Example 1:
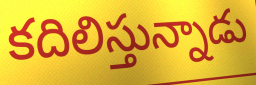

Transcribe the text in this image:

కదిలిస్తున్నాడు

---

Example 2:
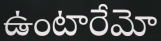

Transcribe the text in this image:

ఉంటారేమో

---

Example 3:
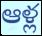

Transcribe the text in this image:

ఆళ్ల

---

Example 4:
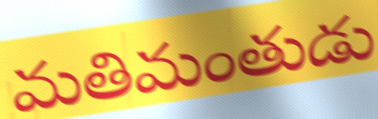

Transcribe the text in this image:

మతిమంతుడు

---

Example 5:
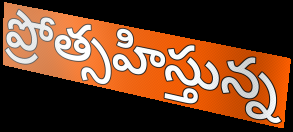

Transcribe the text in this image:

ప్రోత్సహిస్తున్న